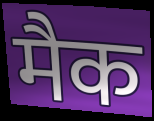
मैक